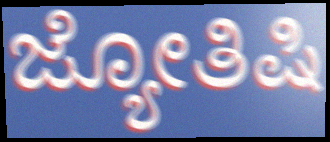
ಜ್ಯೋತಿಷಿ